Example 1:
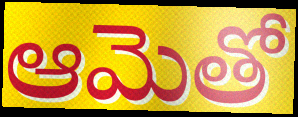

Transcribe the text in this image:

ఆమెతో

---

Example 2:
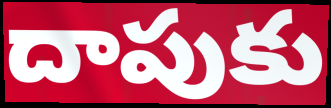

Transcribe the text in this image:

దాపుకు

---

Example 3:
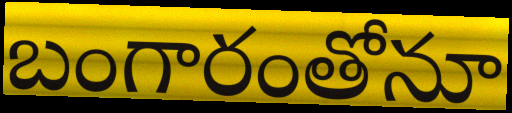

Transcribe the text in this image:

బంగారంతోనూ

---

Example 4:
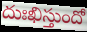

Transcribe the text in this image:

దుఃఖిస్తుందో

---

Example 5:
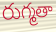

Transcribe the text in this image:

రుగ్మతా